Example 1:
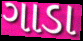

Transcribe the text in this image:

ગાડા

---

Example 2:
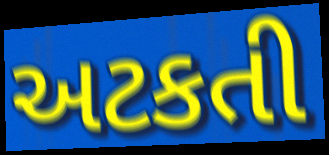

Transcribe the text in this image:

અટકતી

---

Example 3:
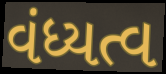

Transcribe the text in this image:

વંધ્યત્વ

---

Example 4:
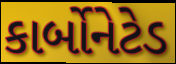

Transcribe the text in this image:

કાર્બોનેટેડ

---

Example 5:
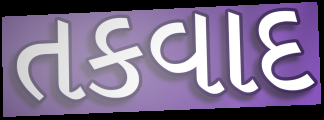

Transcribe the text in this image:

તકવાદ